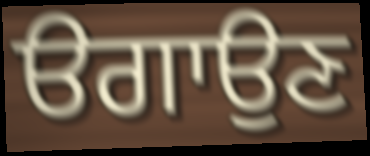
ੳਗਾਉਣ